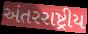
અંતરરાષ્ટ્રીય